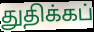
துதிக்கப்